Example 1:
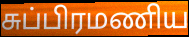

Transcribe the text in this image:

சுப்பிரமணிய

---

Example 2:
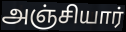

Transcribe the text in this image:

அஞ்சியார்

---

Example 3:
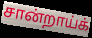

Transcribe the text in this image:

சான்றாய்க்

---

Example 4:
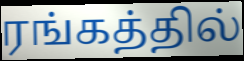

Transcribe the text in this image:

ரங்கத்தில்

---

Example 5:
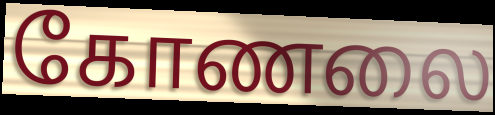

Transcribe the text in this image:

கோணலை